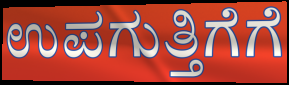
ಉಪಗುತ್ತಿಗೆಗೆ